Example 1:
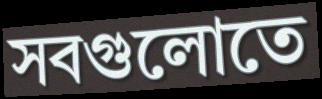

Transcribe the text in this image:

সবগুলোতে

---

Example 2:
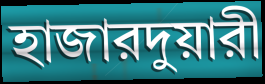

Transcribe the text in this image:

হাজারদুয়ারী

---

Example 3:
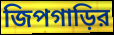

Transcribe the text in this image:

জিপগাড়ির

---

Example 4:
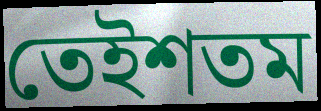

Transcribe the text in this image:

তেইশতম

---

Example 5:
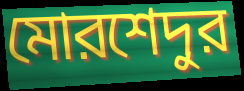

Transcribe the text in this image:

মোরশেদুর